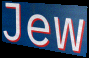
Jew